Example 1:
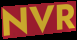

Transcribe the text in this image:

NVR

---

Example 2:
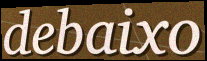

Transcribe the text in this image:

debaixo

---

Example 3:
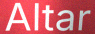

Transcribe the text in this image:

Altar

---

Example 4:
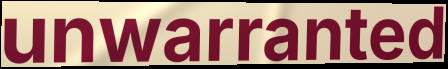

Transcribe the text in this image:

unwarranted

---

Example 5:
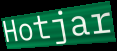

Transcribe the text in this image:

Hotjar